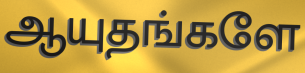
ஆயுதங்களே